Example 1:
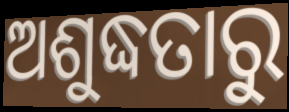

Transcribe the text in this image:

ଅଶୁଦ୍ଧତାରୁ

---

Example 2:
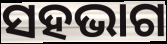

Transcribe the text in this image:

ସହଭାଗ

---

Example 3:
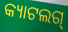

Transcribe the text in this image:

କ୍ୟାଟଲଗ୍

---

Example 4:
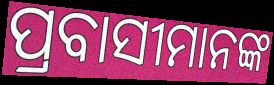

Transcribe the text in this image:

ପ୍ରବାସୀମାନଙ୍କ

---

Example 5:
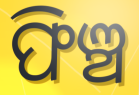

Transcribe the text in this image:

ଫିଞ୍ଚ